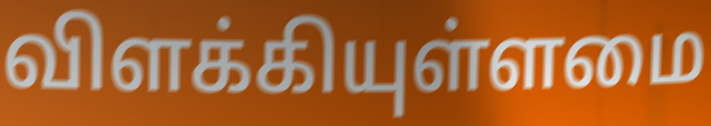
விளக்கியுள்ளமை